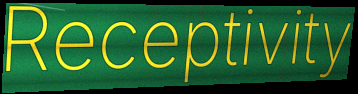
Receptivity